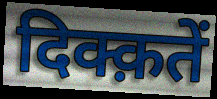
दिक्क़तें